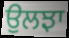
ਉਲਝਾ